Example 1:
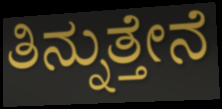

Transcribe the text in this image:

ತಿನ್ನುತ್ತೇನೆ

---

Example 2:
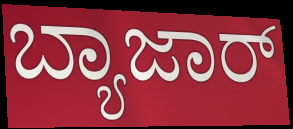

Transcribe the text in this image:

ಬ್ಯಾಜಾರ್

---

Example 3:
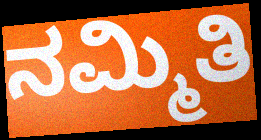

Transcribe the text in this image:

ನಮ್ಮಿತಿ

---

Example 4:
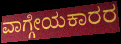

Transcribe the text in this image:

ವಾಗ್ಗೇಯಕಾರರ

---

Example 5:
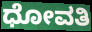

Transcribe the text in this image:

ಧೋವತಿ